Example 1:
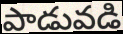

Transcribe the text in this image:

పాడువడి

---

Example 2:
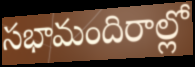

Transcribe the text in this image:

సభామందిరాల్లో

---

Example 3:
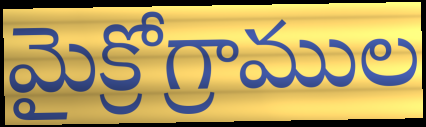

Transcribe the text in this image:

మైక్రోగ్రాముల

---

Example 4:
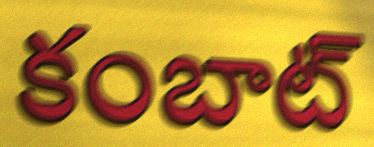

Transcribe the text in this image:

కంబాట్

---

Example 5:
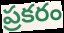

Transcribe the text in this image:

ప్రకరం